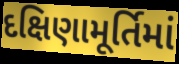
દક્ષિણામૂર્તિમાં